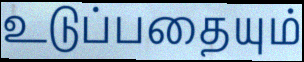
உடுப்பதையும்